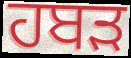
ਹਬੜ